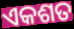
ଏକଶତ